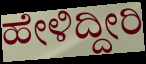
ಹೇಳಿದ್ದೀರಿ